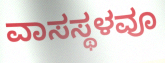
ವಾಸಸ್ಥಳವೂ